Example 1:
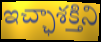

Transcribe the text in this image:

ఇచ్ఛాశక్తిని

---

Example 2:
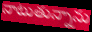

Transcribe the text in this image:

నాటుతున్నాను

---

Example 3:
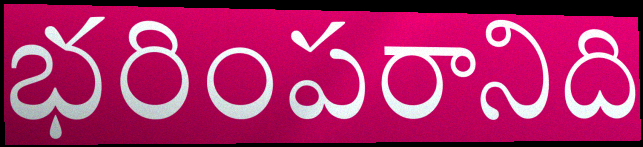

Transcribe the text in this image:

భరింపరానిది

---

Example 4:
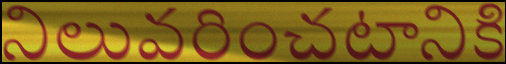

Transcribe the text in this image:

నిలువరించటానికి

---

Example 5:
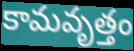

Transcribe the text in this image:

కామవృత్తం